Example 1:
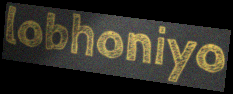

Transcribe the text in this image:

lobhoniyo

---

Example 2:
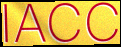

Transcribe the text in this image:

IACC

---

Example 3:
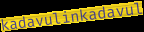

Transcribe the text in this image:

kadavulinkadavul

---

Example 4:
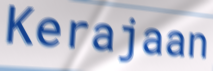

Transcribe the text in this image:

Kerajaan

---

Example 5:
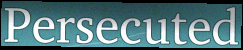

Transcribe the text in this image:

Persecuted